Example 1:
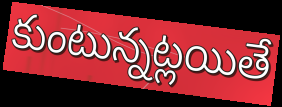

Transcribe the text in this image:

కుంటున్నట్లయితే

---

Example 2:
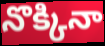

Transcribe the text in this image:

నొక్కినా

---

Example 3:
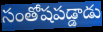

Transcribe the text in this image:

సంతోషపడ్డాడు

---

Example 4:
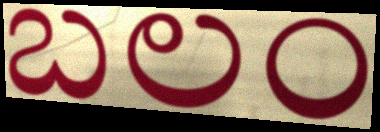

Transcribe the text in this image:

బలం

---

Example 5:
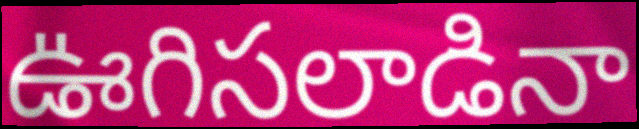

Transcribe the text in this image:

ఊగిసలాడినా